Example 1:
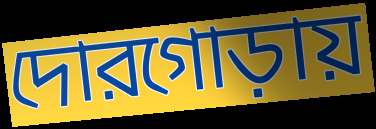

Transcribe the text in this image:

দোরগোড়ায়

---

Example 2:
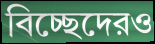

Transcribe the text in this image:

বিচ্ছেদেরও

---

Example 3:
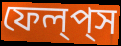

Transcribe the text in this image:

ফেল্‌প্‌স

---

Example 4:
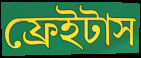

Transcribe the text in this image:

ফ্রেইটাস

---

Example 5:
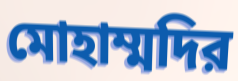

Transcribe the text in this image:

মোহাম্মদির